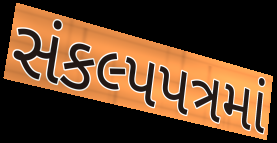
સંકલ્પપત્રમાં